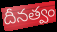
దీనత్వం